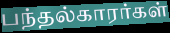
பந்தல்காரர்கள்